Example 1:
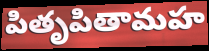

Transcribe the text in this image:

పితృపితామహ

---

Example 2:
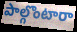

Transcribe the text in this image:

పాల్గొంటారా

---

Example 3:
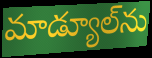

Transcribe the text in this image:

మాడ్యూల్‌ను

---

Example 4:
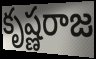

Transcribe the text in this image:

కృష్ణరాజ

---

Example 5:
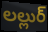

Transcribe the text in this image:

లల్లుర్